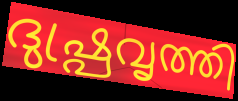
ദുഷ്പ്രവൃത്തി